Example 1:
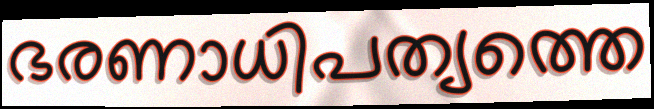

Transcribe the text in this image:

ഭരണാധിപത്യത്തെ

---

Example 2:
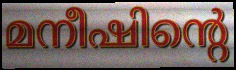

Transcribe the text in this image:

മനീഷിന്റെ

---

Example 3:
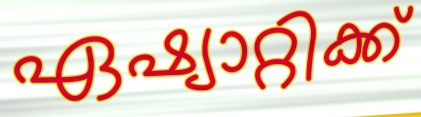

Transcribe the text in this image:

ഏഷ്യാറ്റിക്ക്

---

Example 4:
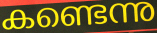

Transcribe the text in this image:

കണ്ടെന്നു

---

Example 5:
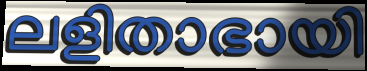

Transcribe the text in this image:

ലളിതാഭായി